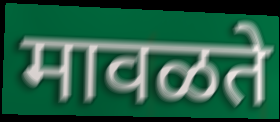
मावळते